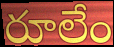
రూలేం